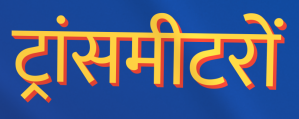
ट्रांसमीटरों